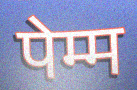
पेम्म